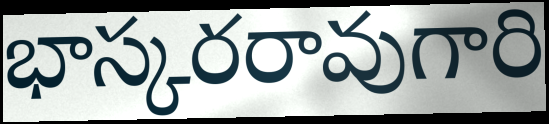
భాస్కరరావుగారి